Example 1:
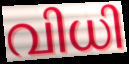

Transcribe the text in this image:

വിധി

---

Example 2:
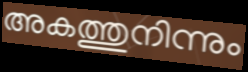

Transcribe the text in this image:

അകത്തുനിന്നും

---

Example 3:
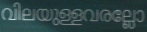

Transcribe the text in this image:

വിലയുള്ളവരല്ലോ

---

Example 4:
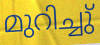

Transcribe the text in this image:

മുറിച്ചു്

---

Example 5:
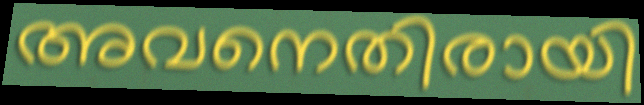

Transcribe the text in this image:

അവനെതിരായി